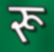
रू